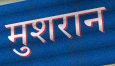
मुशरान